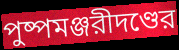
পুষ্পমঞ্জরীদণ্ডের